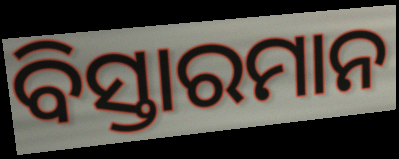
ବିସ୍ତାରମାନ